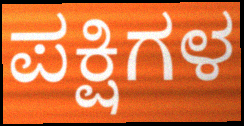
ಪಕ್ಷಿಗಳ